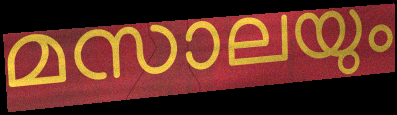
മസാലയും